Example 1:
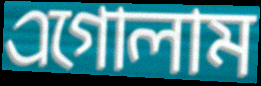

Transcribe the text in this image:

এগোলাম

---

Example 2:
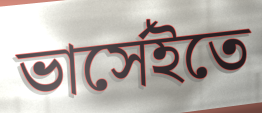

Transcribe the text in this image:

ভার্সেইতে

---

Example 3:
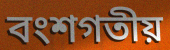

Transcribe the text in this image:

বংশগতীয়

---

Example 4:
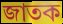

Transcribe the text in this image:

জাতক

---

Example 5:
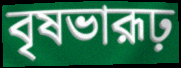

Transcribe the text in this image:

বৃষভারূঢ়